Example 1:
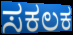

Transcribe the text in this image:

ಸಕಲಕ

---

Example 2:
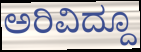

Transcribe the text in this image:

ಅರಿವಿದ್ದೂ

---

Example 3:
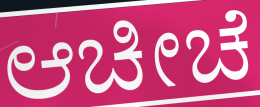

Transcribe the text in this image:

ಆಚೀಚೆ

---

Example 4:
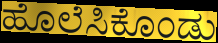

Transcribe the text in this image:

ಹೊಲೆಸಿಕೊಂಡು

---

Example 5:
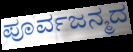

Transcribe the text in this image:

ಪೂರ್ವಜನ್ಮದ